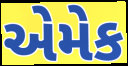
એમેક